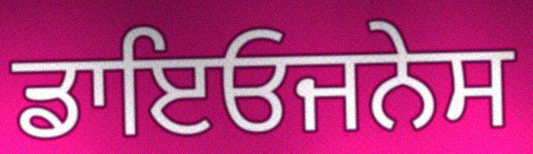
ਡਾਇਓਜਨੇਸ